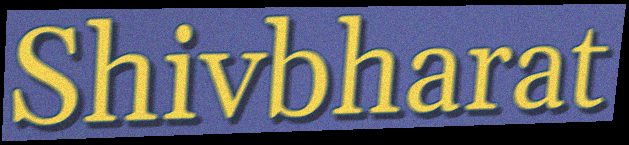
Shivbharat